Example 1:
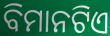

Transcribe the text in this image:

ବିମାନଟିଏ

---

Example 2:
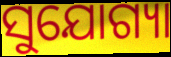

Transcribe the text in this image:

ସୁଯୋଗ୍ୟା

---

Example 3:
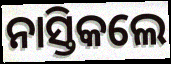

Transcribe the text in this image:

ନାସ୍ତିକଲେ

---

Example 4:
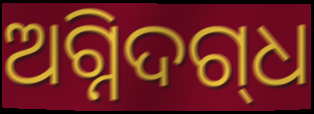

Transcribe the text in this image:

ଅଗ୍ନିଦଗ୍‌ଧ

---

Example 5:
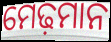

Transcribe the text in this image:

ମେଢ଼ମାନ